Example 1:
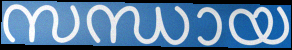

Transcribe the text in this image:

സന്ധായ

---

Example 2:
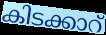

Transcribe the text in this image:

കിടക്കാറ്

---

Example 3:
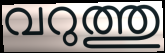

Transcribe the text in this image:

വറുത്തു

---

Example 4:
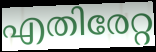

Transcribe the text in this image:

എതിരേറ്റ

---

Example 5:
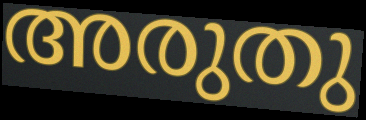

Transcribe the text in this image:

അരുതു